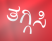
ತಗ್ಗಿಸಿ